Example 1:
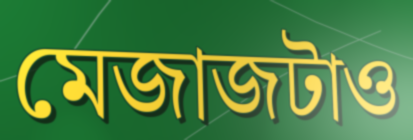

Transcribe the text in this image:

মেজাজটাও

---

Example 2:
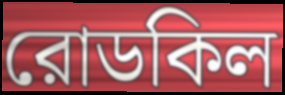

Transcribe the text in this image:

রোডকিল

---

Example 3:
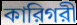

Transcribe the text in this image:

কারিগরী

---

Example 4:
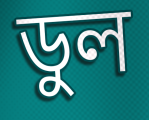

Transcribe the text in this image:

ডুল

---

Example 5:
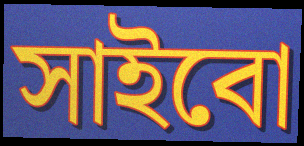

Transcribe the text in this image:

সাইবো